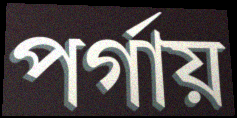
পর্গায়